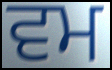
ਵਮ